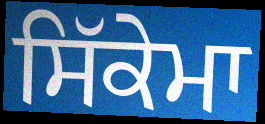
ਸਿੱਕੇਮਾ